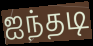
ஐந்தடி